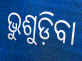
ଭୁଶୁଡ଼ିବା